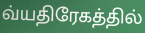
வ்யதிரேகத்தில்